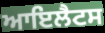
ਆਇਲੈਟਸ